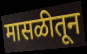
मासळीतून